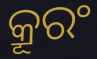
କ୍ରୂରଂ